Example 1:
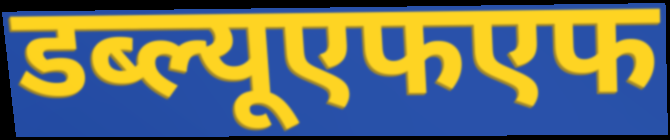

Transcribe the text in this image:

डब्ल्यूएफएफ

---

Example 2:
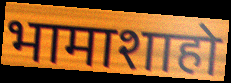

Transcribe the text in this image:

भामाशाहो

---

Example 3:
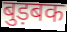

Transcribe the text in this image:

बुड़बक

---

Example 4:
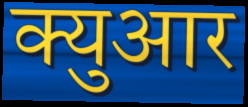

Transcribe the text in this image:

क्युआर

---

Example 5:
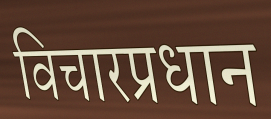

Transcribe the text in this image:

विचारप्रधान